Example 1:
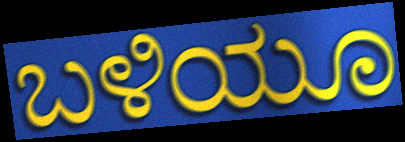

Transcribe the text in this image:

ಬಳಿಯೂ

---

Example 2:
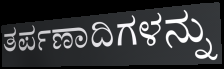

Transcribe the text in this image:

ತರ್ಪಣಾದಿಗಳನ್ನು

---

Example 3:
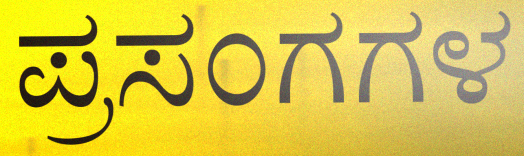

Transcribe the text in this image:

ಪ್ರಸಂಗಗಳ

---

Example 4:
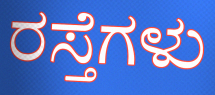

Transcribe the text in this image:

ರಸ್ತೆಗಳು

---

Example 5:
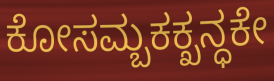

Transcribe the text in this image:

ಕೋಸಮ್ಬಕಕ್ಖನ್ಧಕೇ